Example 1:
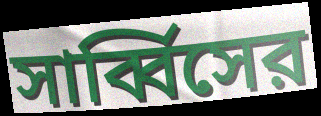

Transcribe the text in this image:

সার্ব্বিসের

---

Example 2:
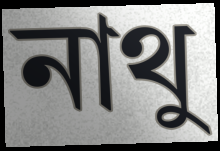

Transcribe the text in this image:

নাথু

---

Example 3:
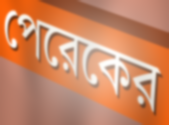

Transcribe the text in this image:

পেরেকের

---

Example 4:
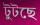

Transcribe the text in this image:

টুটছে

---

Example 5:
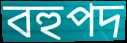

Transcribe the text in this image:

বহুপদ